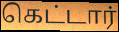
கெட்டார்